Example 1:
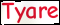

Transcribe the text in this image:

Tyare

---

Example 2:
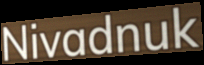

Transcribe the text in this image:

Nivadnuk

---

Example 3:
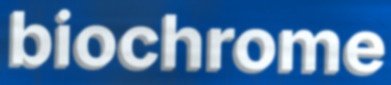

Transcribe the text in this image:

biochrome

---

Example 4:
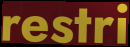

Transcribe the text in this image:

restri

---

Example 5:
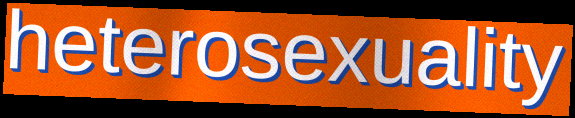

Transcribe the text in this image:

heterosexuality